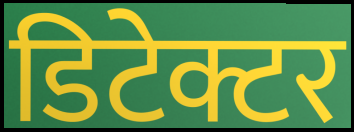
डिटेक्टर